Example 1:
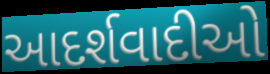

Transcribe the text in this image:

આદર્શવાદીઓ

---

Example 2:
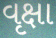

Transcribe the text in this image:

વૃક્ષા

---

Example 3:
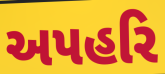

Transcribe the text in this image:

અપહરિ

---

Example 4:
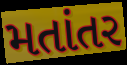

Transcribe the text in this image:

મતાંતર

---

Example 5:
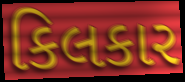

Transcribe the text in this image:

કિલકાર